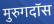
मुरुगदॉस